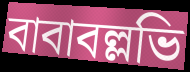
বাবাবল্লভি